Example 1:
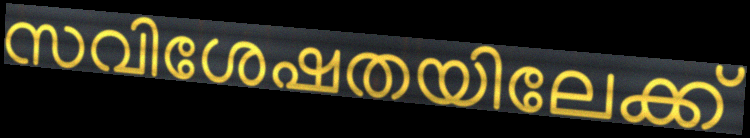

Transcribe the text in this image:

സവിശേഷതയിലേക്ക്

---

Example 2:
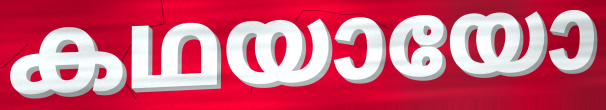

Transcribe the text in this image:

കഥയായോ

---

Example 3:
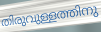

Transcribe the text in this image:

തിരുവുള്ളത്തിനു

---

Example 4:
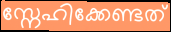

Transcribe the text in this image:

സ്നേഹിക്കേണ്ടത്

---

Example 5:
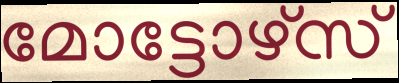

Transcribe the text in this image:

മോട്ടോഴ്സ്